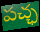
పచ్ఛ